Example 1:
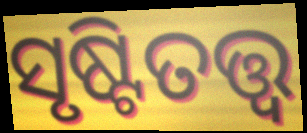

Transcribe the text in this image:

ସୃଷ୍ଟିତତ୍ତ୍ୱ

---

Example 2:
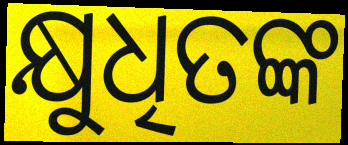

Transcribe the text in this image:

କ୍ଷୁଧିତଙ୍କ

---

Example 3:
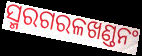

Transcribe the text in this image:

ସ୍ମରଗରଳଖଣ୍ଡନଂ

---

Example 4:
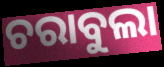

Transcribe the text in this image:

ଚରାବୁଲା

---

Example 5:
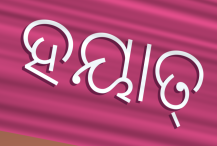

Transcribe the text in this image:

ହୟାତ୍